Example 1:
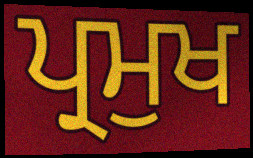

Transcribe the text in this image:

ਪ੍ਰਮੁਖ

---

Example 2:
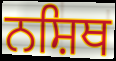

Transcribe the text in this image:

ਨਸ਼ਿਥ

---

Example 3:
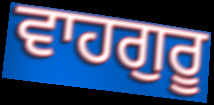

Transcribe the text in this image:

ਵਾਹਗੁਰੂ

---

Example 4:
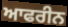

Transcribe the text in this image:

ਆਫਰੀਨ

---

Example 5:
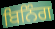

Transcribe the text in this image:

ਬਿਨਿੰਗ